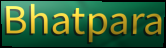
Bhatpara